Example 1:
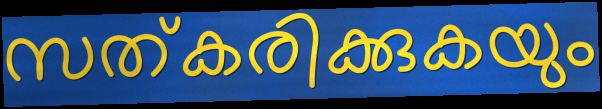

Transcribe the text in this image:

സത്കരിക്കുകയും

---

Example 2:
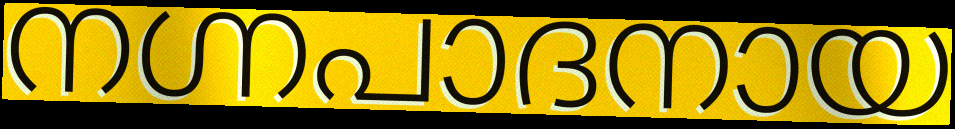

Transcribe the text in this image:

നഗ്നപാദനായ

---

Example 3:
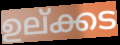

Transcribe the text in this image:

ഉല്ക്കട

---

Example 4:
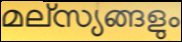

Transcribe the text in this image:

മല്സ്യങ്ങളും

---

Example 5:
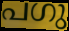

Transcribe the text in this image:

പഗു